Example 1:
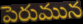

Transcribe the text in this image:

పెరుమున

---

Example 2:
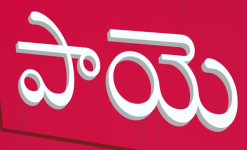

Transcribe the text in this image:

పాయె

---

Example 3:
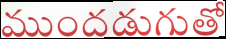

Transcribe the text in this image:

ముందడుగుతో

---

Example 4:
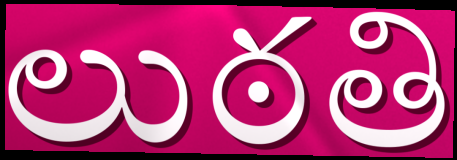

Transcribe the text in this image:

లుఠతి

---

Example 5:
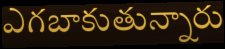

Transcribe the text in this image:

ఎగబాకుతున్నారు